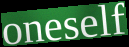
oneself